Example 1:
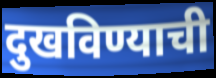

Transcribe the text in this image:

दुखविण्याची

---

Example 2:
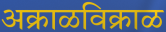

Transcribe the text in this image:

अक्राळविक्राळ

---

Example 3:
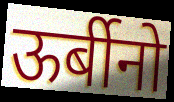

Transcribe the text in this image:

ऊर्बीनो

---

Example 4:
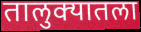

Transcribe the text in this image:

तालुक्यातला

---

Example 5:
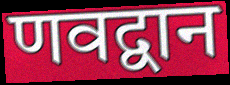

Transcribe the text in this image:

णवद्वान